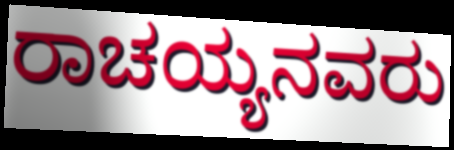
ರಾಚಯ್ಯನವರು